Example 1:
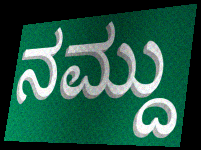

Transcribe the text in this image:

ನಮ್ದು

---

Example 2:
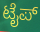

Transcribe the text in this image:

ಟೈಪ್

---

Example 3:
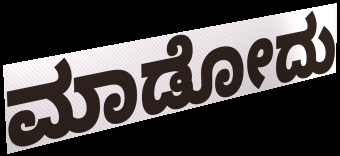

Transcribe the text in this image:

ಮಾಡೋದು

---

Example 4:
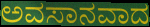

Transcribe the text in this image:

ಅವಸಾನವಾದ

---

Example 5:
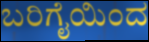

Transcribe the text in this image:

ಬರಿಗೈಯಿಂದ